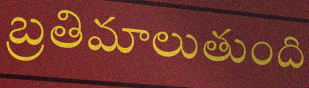
బ్రతిమాలుతుంది